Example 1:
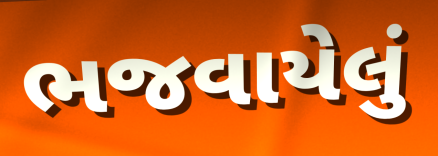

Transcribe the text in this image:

ભજવાયેલું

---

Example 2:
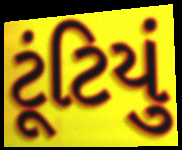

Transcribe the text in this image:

ટૂંટિયું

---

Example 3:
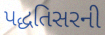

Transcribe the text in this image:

પદ્ધતિસરની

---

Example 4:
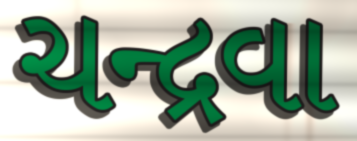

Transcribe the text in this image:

ચન્દ્રવા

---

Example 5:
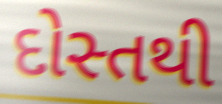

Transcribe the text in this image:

દોસ્તથી